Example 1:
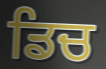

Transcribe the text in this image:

ਡਿਚ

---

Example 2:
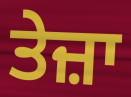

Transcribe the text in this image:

ਤੇਜ਼ਾ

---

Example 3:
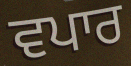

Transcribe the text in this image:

ਵਪਾਰ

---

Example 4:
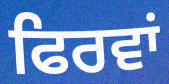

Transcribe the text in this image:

ਫਿਰਵਾਂ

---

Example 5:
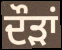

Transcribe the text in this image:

ਦੌੜਾਂ